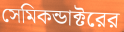
সেমিকন্ডাক্টরের